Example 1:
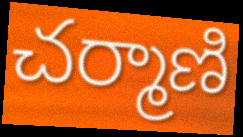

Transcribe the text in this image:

చర్మాణి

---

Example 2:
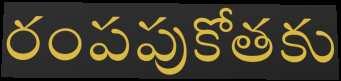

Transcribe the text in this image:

రంపపుకోతకు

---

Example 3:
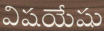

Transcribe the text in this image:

విషయేషు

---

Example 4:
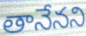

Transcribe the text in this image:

తానేనని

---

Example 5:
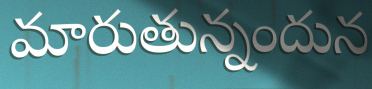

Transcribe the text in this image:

మారుతున్నందున